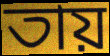
তায়